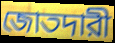
জোতদারী